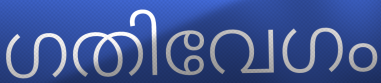
ഗതിവേഗം